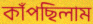
কাঁপছিলাম